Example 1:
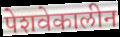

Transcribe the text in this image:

पेशवेकालीन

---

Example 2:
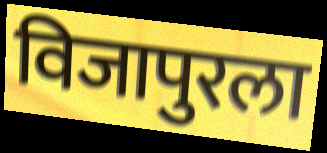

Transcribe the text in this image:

विजापुरला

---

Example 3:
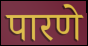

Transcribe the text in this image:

पारणे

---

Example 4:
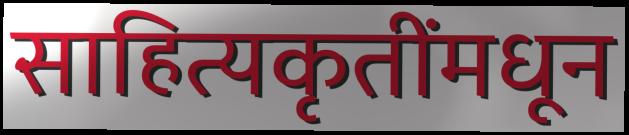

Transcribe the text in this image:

साहित्यकृतींमधून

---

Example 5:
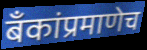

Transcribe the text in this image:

बॅंकांप्रमाणेच